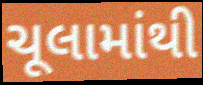
ચૂલામાંથી